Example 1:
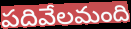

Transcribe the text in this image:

పదివేలమంది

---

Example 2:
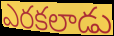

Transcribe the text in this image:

ఎరకలాడు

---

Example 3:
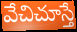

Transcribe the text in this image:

వేచిచూస్తే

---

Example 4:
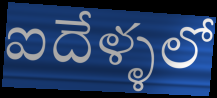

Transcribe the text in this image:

ఐదేళ్ళలో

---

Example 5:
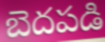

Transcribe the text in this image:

బెదపడి